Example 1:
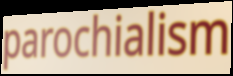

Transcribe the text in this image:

parochialism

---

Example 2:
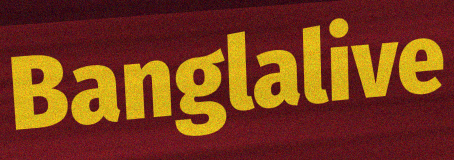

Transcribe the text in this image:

Banglalive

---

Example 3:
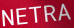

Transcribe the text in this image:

NETRA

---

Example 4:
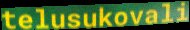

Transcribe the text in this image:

telusukovali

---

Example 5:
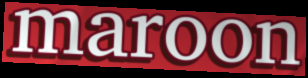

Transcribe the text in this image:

maroon